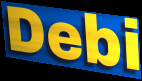
Debi